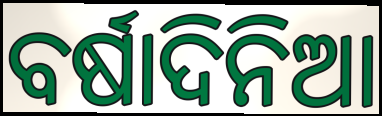
ବର୍ଷାଦିନିଆ